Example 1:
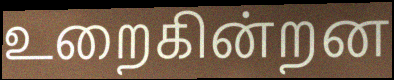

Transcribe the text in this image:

உறைகின்றன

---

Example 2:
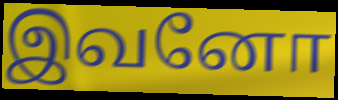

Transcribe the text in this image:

இவனோ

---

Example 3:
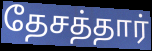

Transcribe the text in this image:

தேசத்தார்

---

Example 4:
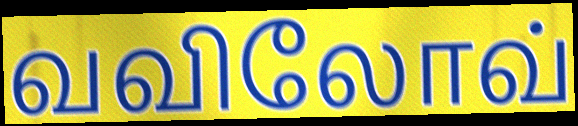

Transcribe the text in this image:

வவிலோவ்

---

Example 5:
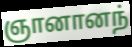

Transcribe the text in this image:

ஞானானந்